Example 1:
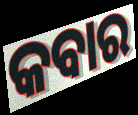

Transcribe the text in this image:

କବାର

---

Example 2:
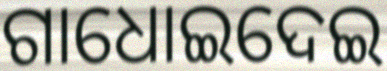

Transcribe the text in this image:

ଗାଧୋଇଦେଇ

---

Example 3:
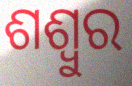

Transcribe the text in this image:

ଶଶ୍ୱୁର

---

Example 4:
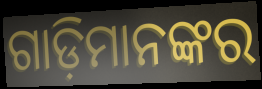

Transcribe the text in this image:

ଗାଡ଼ିମାନଙ୍କର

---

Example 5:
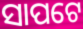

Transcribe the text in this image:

ସାପଟେ